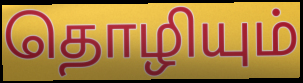
தொழியும்